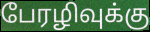
பேரழிவுக்கு